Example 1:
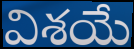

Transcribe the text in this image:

విశయే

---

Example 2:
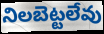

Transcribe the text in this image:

నిలబెట్టలేవు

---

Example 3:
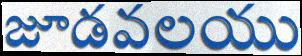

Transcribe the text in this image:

జూడవలయు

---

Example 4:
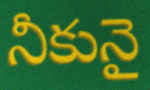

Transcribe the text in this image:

నీకునై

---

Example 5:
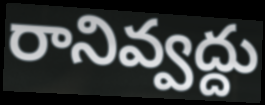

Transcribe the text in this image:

రానివ్వద్దు